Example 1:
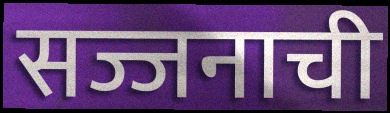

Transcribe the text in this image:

सज्जनाची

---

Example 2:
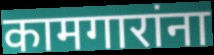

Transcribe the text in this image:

कामगारांना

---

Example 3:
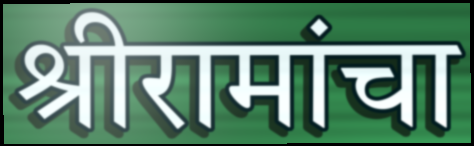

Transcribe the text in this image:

श्रीरामांचा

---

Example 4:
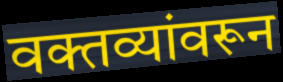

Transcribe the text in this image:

वक्तव्यांवरून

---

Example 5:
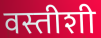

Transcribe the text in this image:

वस्‍तीशी